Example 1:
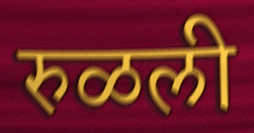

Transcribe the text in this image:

रुळली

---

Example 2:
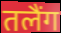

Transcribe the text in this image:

तलैंग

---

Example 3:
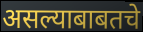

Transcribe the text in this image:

असल्याबाबतचे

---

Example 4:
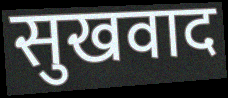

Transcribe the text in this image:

सुखवाद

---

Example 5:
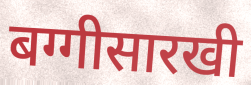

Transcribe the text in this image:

बग्गीसारखी